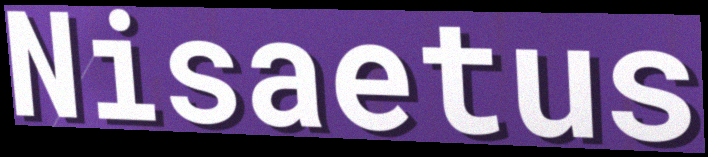
Nisaetus